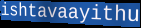
ishtavaayithu